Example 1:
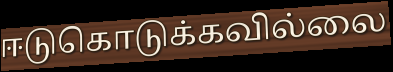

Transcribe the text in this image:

ஈடுகொடுக்கவில்லை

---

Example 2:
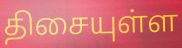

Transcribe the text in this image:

திசையுள்ள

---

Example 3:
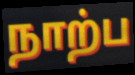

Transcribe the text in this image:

நாற்ப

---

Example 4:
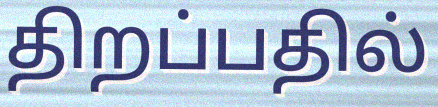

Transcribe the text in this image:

திறப்பதில்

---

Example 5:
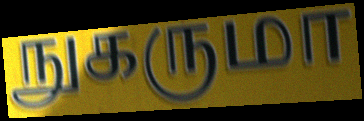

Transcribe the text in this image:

நுகருமா